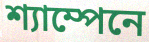
শ্যাম্পেনে